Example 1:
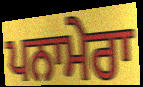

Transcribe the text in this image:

ਪਨਾਮੇਰਾ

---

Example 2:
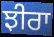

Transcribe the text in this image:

ਝੀਰਾ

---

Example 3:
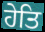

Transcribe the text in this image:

ਹੇਤਿ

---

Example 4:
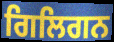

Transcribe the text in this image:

ਗਿਲਿਗਨ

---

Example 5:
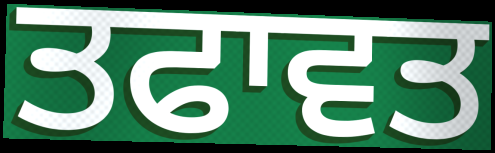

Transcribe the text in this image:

ਤਫਾਵਤ